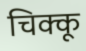
चिक्कू